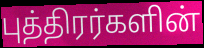
புத்திரர்களின்